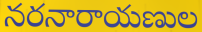
నరనారాయణుల